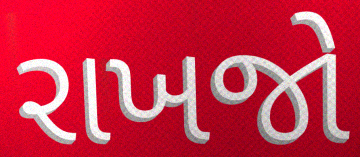
રાખજો